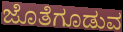
ಜೊತೆಗೂಡುವ